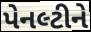
પેનલ્ટીને